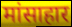
मांसाहार